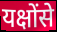
यक्षोंसे